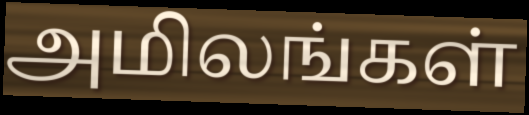
அமிலங்கள்